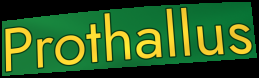
Prothallus